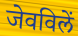
जेवविलें